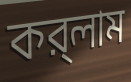
কর্‌লাম